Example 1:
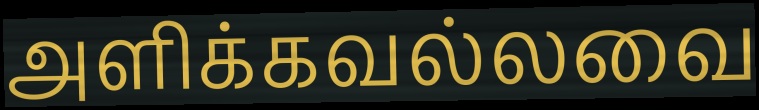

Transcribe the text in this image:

அளிக்கவல்லவை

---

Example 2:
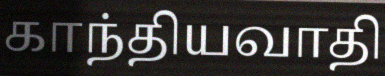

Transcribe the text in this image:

காந்தியவாதி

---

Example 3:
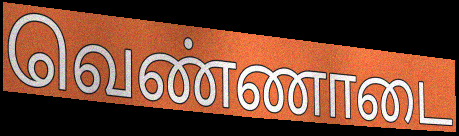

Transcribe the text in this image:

வெண்ணாடை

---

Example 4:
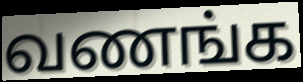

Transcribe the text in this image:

வணங்க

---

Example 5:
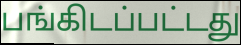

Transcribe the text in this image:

பங்கிடப்பட்டது